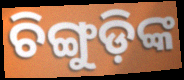
ଚିଙ୍ଗୁଡ଼ିଙ୍କ